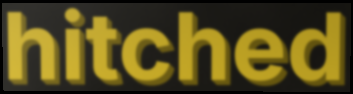
hitched